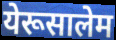
येरूसालेम